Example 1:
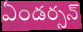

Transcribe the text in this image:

ఏండర్సన్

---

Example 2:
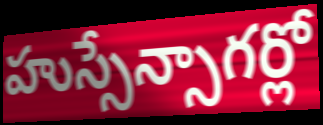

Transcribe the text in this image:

హుస్సేన్సాగర్లో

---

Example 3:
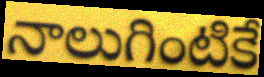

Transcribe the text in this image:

నాలుగింటికే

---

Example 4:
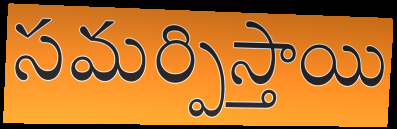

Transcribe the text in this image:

సమర్పిస్తాయి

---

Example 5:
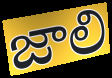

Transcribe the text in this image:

జాలి